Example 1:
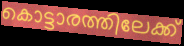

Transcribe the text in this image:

കൊട്ടാരത്തിലേക്ക്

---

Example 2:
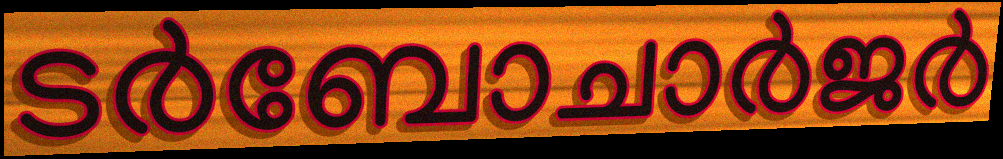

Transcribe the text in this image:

ടർബോചാർജർ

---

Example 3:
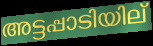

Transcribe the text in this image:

അട്ടപ്പാടിയില്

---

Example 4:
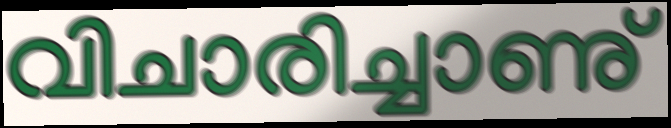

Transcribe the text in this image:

വിചാരിച്ചാണു്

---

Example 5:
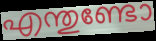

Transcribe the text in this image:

എന്തുണ്ടോ